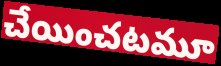
చేయించటమూ